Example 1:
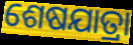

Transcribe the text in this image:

ଶେଷଯାତ୍ରା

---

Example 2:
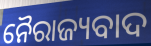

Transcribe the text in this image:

ନୈରାଜ୍ୟବାଦ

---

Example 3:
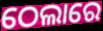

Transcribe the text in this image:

ଠେଲାରେ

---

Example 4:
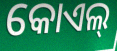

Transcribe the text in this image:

କୋଏଲ୍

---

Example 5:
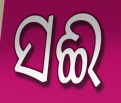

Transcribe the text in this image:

ସଈ